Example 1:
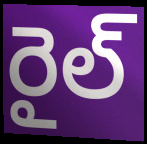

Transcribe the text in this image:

రైల్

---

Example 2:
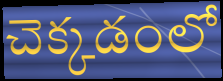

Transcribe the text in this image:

చెక్కడంలో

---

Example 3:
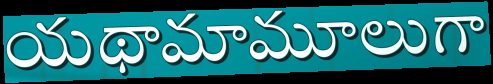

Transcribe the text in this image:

యథామామూలుగా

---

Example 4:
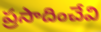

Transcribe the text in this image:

ప్రసాదించేవి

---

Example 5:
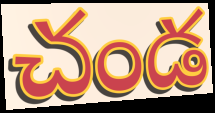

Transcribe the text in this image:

చండ